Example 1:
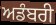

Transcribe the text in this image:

ਅਡੰਬਰੀ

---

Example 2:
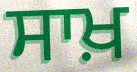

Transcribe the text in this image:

ਸਾਖ਼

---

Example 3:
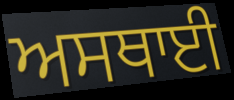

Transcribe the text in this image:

ਅਸਥਾਈ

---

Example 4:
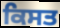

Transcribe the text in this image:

ਕਿਸਤ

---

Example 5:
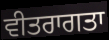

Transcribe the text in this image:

ਵੀਤਰਾਗਤਾ